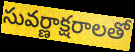
సువర్ణాక్షరాలతో